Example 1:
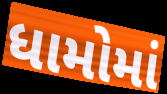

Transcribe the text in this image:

ધામોમાં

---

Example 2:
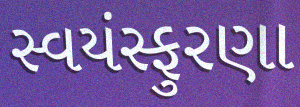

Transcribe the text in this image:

સ્વયંસ્ફુરણા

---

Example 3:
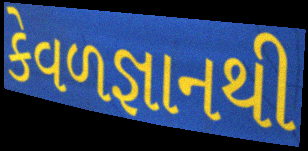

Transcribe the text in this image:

કેવળજ્ઞાનથી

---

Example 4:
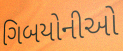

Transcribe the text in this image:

ગિબયોનીઓ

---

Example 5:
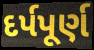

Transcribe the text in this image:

દર્પપૂર્ણ